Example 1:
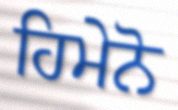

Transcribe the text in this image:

ਹਿਮੇਨੋ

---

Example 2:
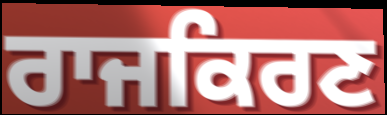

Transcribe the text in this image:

ਰਾਜਕਿਰਣ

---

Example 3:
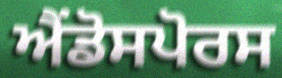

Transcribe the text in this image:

ਐਂਡੋਸਪੋਰਸ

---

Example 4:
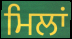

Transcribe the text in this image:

ਮਿਲਾਂ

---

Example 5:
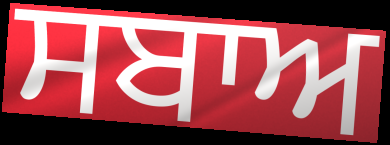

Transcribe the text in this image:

ਸਬਾਅ